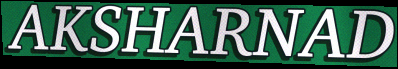
AKSHARNAD